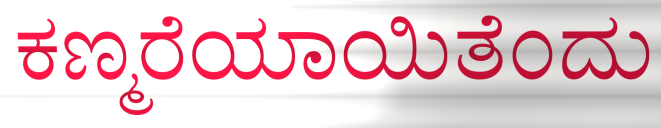
ಕಣ್ಮರೆಯಾಯಿತೆಂದು